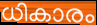
ധികാരം